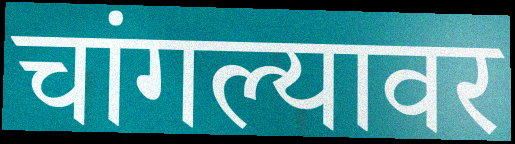
चांगल्यावर